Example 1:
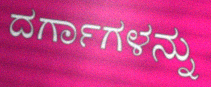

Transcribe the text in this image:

ದರ್ಗಾಗಳನ್ನು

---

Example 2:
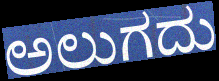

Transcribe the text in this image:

ಅಲುಗದು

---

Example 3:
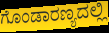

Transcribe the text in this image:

ಗೊಂಡಾರಣ್ಯದಲ್ಲಿ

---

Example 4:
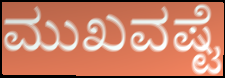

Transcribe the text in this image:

ಮುಖವಷ್ಟೆ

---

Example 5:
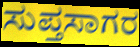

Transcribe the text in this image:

ಸುಪ್ತಸಾಗರ